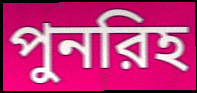
পুনরিহ